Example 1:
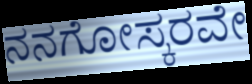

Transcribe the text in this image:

ನನಗೋಸ್ಕರವೇ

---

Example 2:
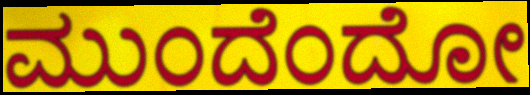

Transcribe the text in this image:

ಮುಂದೆಂದೋ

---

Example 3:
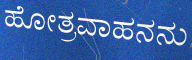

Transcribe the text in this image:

ಹೋತ್ರವಾಹನನು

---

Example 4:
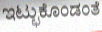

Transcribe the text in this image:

ಇಟ್ಟುಕೊಂಡಂತೆ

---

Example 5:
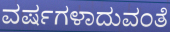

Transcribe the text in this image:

ವರ್ಷಗಳಾದುವಂತೆ